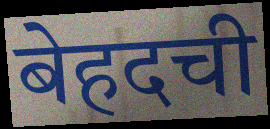
बेहदची